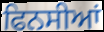
ਫਿਨਸੀਆਂ